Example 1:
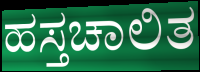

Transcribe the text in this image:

ಹಸ್ತಚಾಲಿತ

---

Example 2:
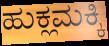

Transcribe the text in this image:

ಹುಕ್ಲಮಕ್ಕಿ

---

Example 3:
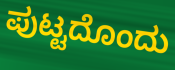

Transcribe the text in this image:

ಪುಟ್ಟದೊಂದು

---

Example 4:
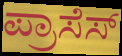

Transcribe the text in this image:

ಪ್ರಾಸೆಸ್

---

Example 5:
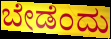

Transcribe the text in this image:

ಬೇಡೆಂದು